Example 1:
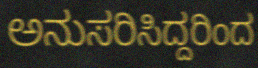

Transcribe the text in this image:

ಅನುಸರಿಸಿದ್ದರಿಂದ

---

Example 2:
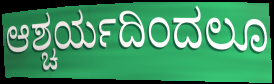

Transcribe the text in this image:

ಆಶ್ಚರ್ಯದಿಂದಲೂ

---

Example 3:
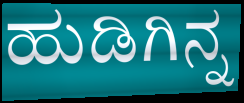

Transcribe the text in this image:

ಹುಡಿಗಿನ್ನ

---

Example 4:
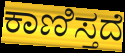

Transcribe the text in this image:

ಕಾಣಿಸ್ತದೆ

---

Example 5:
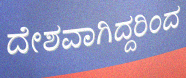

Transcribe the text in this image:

ದೇಶವಾಗಿದ್ದರಿಂದ